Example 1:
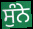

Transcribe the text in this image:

ਸੁੰਨੇ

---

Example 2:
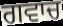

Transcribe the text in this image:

ਗਵਾਚ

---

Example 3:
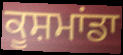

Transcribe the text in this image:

ਕੂਸ਼ਮਾਂਡਾ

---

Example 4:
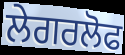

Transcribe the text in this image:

ਲੇਗਰਲੋਫ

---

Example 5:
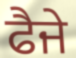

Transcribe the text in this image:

ਫੈਜੇ